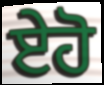
ਏਹੋ